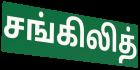
சங்கிலித்